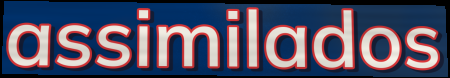
assimilados